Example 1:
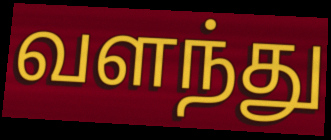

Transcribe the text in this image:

வளந்து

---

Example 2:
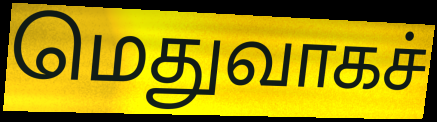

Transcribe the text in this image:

மெதுவாகச்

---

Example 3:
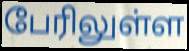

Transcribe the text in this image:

பேரிலுள்ள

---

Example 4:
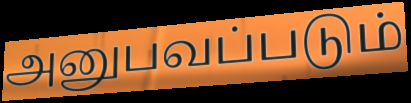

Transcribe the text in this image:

அனுபவப்படும்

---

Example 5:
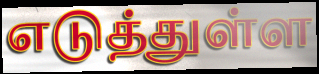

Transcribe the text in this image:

எடுத்துள்ள